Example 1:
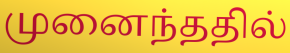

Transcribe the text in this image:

முனைந்ததில்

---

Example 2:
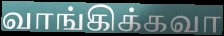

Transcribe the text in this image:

வாங்கிக்கவா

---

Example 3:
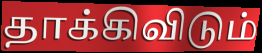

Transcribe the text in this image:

தாக்கிவிடும்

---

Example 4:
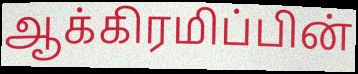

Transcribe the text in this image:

ஆக்கிரமிப்பின்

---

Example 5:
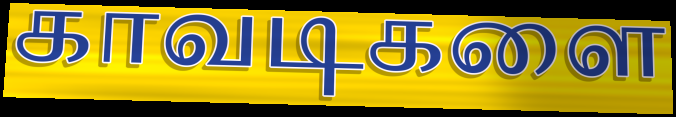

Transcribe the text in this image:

காவடிகளை